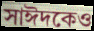
সাঈদকেও